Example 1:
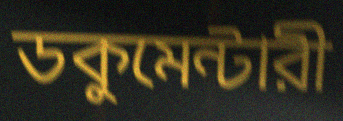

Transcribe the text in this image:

ডকুমেন্টারী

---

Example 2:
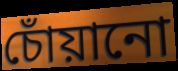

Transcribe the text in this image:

চোঁয়ানো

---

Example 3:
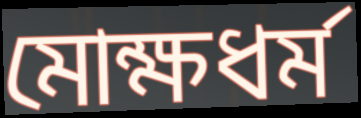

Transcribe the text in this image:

মোক্ষধর্ম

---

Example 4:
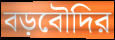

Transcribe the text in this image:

বড়বৌদির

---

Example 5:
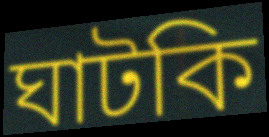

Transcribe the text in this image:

ঘাটকি